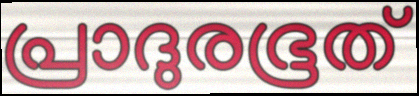
പ്രാദുരഭൂത്